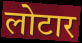
लोटार